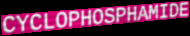
CYCLOPHOSPHAMIDE